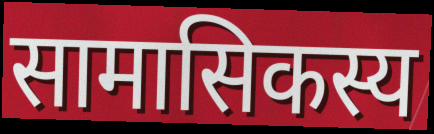
सामासिकस्य